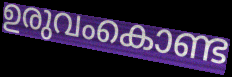
ഉരുവംകൊണ്ട